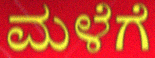
ಮಳೆಗೆ